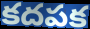
కదపక